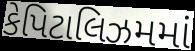
કેપિટાલિઝમમાં